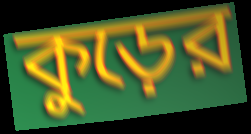
কুড়ের